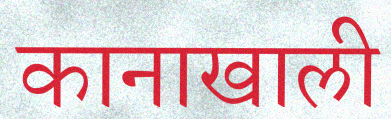
कानाखाली